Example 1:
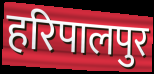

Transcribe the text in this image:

हरिपालपुर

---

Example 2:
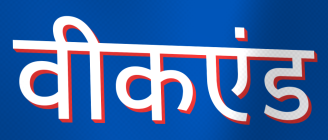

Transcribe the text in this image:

वीकएंड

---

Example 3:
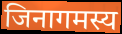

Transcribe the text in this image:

जिनागमस्य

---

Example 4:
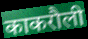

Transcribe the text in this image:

काकरौली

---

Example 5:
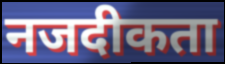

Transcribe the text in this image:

नजदीकता